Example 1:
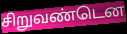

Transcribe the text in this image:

சிறுவண்டென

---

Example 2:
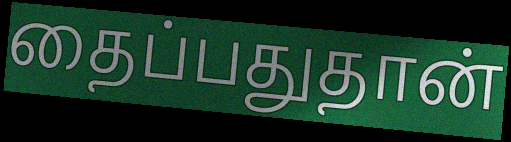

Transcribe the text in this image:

தைப்பதுதான்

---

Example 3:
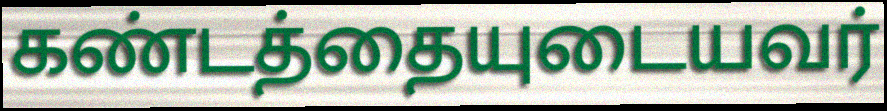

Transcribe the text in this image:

கண்டத்தையுடையவர்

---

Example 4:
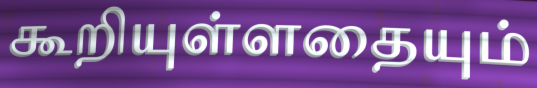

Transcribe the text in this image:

கூறியுள்ளதையும்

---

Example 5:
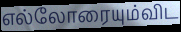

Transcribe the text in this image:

எல்லோரையும்விட